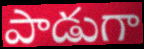
పాడుగా